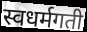
स्वधर्मगती